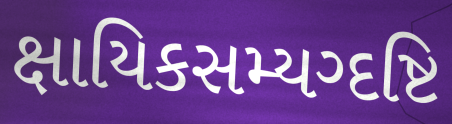
ક્ષાયિકસમ્યગ્દષ્ટિ